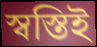
স্বস্তিই